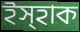
ইস্‌হাক